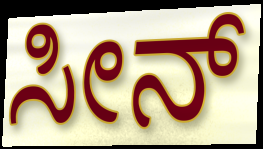
ಸೀನ್